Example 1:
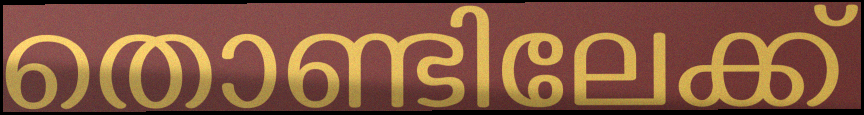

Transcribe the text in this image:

തൊണ്ടിലേക്ക്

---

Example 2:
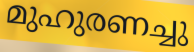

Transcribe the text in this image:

മുഹുരണച്ചു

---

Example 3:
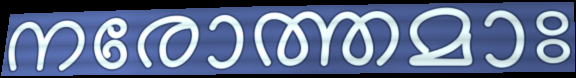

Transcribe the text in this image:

നരോത്തമാഃ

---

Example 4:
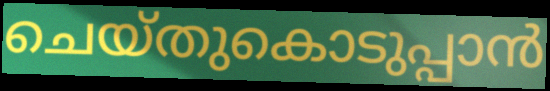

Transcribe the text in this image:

ചെയ്തുകൊടുപ്പാൻ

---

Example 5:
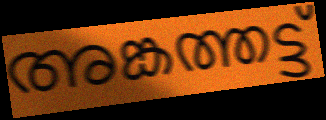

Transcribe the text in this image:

അങ്കത്തട്ട്